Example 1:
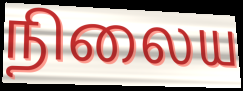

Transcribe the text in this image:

நிலைய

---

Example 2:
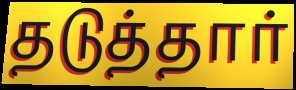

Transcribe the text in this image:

தடுத்தார்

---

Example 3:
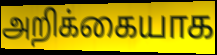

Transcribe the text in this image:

அறிக்கையாக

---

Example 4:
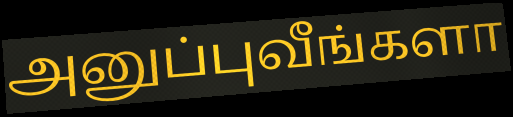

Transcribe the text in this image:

அனுப்புவீங்களா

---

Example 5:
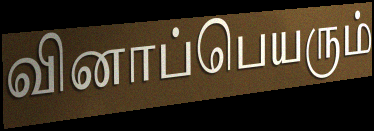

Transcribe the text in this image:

வினாப்பெயரும்